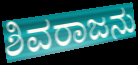
ಶಿವರಾಜನು